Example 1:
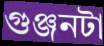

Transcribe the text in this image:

গুঞ্জনটা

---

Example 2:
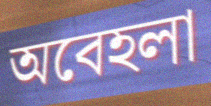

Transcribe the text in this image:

অবেহলা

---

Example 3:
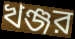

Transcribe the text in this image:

খঞ্জর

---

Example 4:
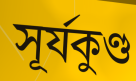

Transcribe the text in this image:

সূর্যকুণ্ড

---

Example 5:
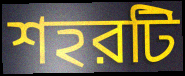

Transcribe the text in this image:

শহরটি